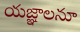
యజ్ఞాలనూ